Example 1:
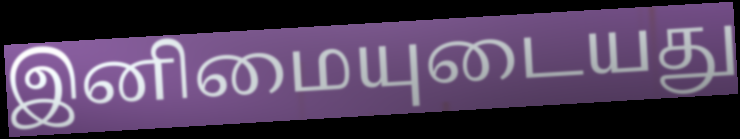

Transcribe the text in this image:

இனிமையுடையது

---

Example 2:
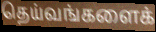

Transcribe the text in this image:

தெய்வங்களைக்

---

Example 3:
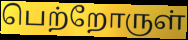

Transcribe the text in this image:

பெற்றோருள்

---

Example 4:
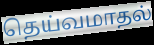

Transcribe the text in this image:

தெய்வமாதல்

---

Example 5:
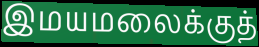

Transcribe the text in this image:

இமயமலைக்குத்